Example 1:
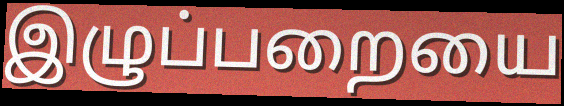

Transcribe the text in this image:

இழுப்பறையை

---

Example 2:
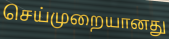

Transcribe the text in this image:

செய்முறையானது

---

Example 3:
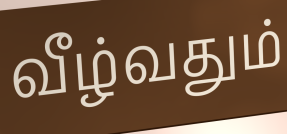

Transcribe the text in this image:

வீழ்வதும்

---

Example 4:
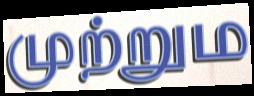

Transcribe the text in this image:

முற்றும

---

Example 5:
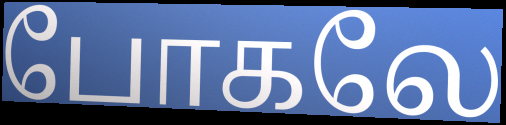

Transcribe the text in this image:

போகலே